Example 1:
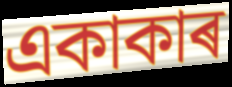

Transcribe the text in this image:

একাকাৰ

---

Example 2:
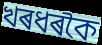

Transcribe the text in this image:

খৰধৰকৈ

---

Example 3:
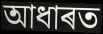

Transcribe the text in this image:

আধাৰত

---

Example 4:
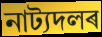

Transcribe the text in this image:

নাট্যদলৰ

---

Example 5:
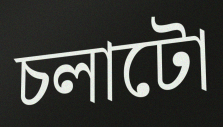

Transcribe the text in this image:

চলাটো